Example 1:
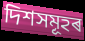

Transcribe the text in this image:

দিশসমূহৰ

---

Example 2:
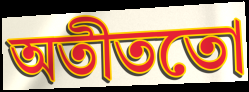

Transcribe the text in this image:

অতীততো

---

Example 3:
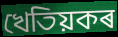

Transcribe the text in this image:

খেতিয়কৰ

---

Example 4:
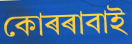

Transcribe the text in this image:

কোৰৰাবাই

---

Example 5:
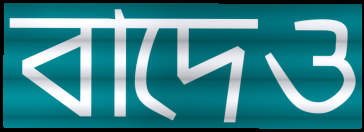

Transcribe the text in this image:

বাদেও